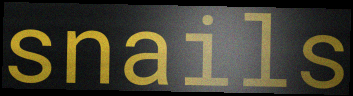
snails